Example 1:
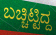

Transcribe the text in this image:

ಬಚ್ಚಿಟ್ಟಿದ್ದ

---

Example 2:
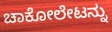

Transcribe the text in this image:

ಚಾಕೋಲೇಟನ್ನು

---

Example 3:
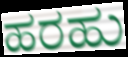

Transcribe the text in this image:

ಹರಹು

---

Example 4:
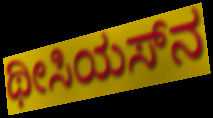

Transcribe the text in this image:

ಥೀಸಿಯಸ್‌ನ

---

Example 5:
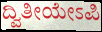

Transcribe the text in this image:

ದ್ವಿತೀಯೇಽಪಿ